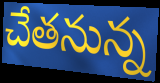
చేతనున్న